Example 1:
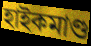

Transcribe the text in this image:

হাইকমাণ্ড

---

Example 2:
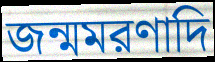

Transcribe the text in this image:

জন্মমরণাদি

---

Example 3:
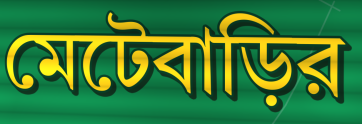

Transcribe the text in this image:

মেটেবাড়ির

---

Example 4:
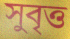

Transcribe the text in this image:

সুবৃত্ত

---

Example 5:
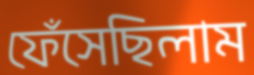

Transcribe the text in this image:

ফেঁসেছিলাম